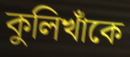
কুলিখাঁকে